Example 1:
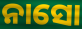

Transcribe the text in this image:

ନାସୋ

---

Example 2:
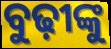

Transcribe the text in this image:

ବୁଢ଼ୀଙ୍କୁ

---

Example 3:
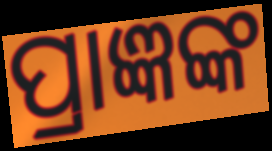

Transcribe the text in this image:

ପ୍ରାଜ୍ଞଙ୍କ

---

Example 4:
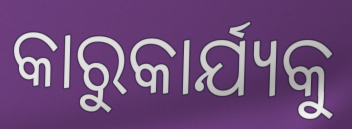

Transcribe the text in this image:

କାରୁକାର୍ଯ୍ୟକୁ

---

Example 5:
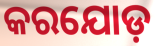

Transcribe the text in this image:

କରଯୋଡ଼